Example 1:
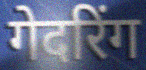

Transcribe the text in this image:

गेदरिंग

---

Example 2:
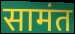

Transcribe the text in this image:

सामंत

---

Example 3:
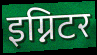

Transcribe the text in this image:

इग्निटर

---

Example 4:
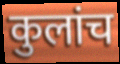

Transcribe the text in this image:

कुलांच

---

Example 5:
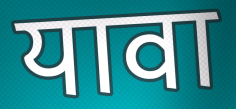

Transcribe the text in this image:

यावा